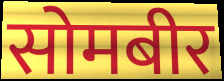
सोमबीर